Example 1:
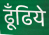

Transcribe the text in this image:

ढूँढिये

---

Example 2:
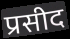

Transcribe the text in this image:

प्रसीद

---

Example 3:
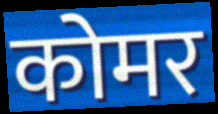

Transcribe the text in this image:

कोमर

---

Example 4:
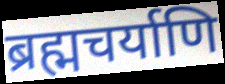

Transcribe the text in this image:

ब्रह्मचर्याणि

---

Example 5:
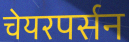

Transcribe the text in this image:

चेयरपर्सन